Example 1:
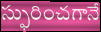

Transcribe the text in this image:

స్ఫురించగానే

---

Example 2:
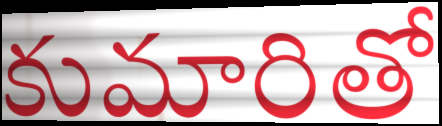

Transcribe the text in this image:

కుమారితో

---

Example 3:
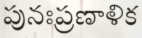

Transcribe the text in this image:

పునఃప్రణాళిక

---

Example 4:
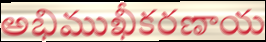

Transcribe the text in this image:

అభిముఖీకరణాయ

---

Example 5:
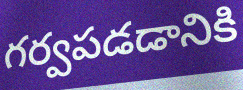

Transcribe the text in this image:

గర్వపడడానికి